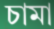
চামা